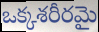
ఒక్కశరీరమై